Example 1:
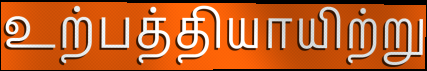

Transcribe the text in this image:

உற்பத்தியாயிற்று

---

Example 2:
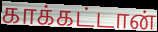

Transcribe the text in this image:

காக்கட்டான்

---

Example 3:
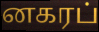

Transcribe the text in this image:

னகரப்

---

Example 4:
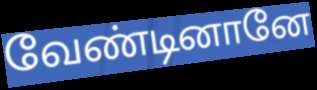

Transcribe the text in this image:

வேண்டினானே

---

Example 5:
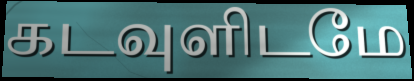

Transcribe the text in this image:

கடவுளிடமே